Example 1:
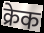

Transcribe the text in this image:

क्रेक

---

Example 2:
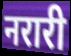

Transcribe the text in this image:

नरारी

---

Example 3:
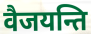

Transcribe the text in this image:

वैजयन्ति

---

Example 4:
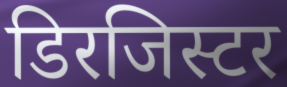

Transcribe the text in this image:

डिरजिस्टर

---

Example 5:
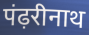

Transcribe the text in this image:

पंढ़रीनाथ